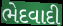
ભેદવાદી